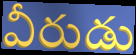
వీరుడు